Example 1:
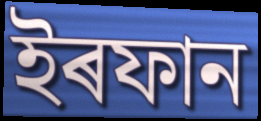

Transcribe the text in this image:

ইৰফান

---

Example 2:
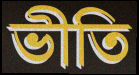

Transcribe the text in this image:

ভীতি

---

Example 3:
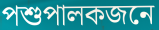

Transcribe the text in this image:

পশুপালকজনে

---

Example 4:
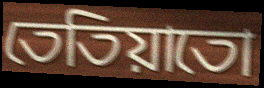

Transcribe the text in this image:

তেতিয়াতো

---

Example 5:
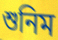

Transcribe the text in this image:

শুনিম